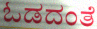
ಓಡದಂತೆ